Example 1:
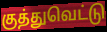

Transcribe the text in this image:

குத்துவெட்டு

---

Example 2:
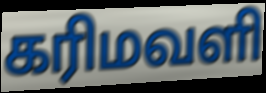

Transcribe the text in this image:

கரிமவளி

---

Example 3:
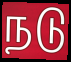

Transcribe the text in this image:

நடு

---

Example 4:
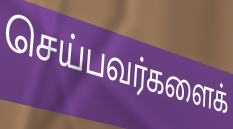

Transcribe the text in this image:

செய்பவர்களைக்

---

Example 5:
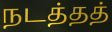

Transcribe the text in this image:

நடத்தத்